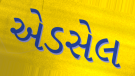
એડસેલ